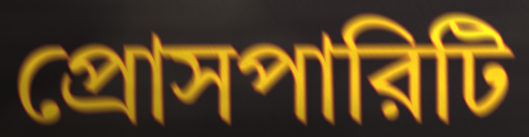
প্রোসপারিটি